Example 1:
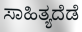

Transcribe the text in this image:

ಸಾಹಿತ್ಯದೆಡೆ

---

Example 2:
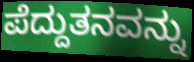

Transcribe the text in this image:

ಪೆದ್ದುತನವನ್ನು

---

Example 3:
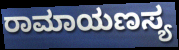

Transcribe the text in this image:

ರಾಮಾಯಣಸ್ಯ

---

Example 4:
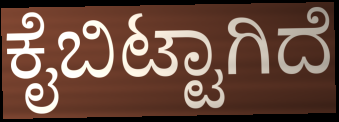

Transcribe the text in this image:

ಕೈಬಿಟ್ಟಾಗಿದೆ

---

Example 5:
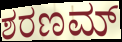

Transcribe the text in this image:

ಶರಣಮ್